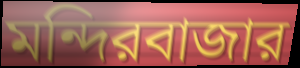
মন্দিরবাজার